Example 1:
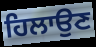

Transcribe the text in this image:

ਹਿਲਾਉਣ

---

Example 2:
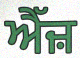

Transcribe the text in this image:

ਐੱਜ਼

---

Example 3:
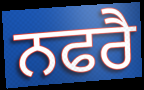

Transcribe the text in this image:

ਨਫਰੈ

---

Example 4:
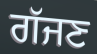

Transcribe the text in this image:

ਗੱਜਣ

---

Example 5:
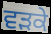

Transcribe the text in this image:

ਵੜਕੇ